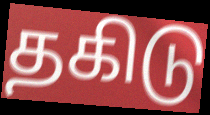
தகிடு